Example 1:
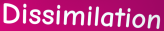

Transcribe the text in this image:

Dissimilation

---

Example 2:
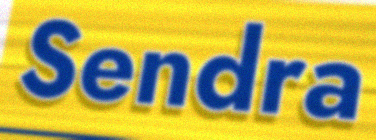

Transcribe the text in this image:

Sendra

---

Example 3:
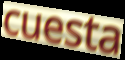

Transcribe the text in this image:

cuesta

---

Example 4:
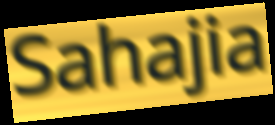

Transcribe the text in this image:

Sahajia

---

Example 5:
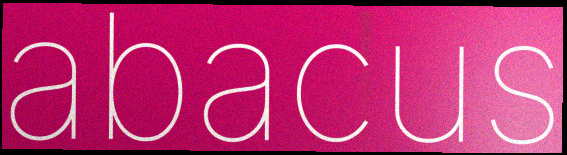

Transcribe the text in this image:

abacus